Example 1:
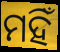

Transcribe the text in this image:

ମହିଁ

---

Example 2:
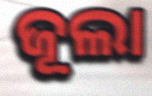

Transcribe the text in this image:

ଜୂଲା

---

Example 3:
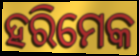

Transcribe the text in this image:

ହରିମେକ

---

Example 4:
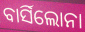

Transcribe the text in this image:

ବାର୍ସିଲୋନା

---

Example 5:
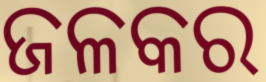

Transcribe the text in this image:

ଜଳକର